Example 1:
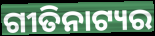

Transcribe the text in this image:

ଗୀତିନାଟ୍ୟର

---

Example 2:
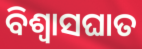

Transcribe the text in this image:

ବିଶ୍ବାସଘାତ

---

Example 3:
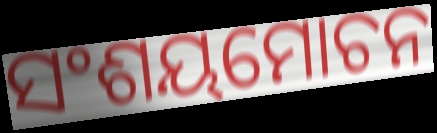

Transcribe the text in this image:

ସଂଶୟମୋଚନ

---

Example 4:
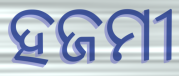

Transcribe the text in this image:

ହଜମୀ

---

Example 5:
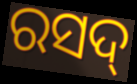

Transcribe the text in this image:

ରସଦ୍